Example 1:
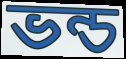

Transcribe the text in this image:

ভন্ড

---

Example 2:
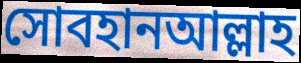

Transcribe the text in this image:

সোবহানআল্লাহ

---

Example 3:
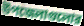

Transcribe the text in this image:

উপজেলাগুলোর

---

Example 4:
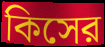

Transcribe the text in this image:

কিসের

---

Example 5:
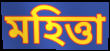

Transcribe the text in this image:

মহিত্তা